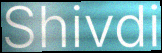
Shivdi